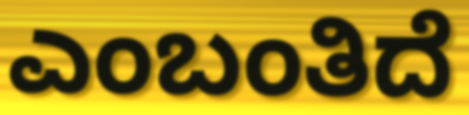
ಎಂಬಂತಿದೆ